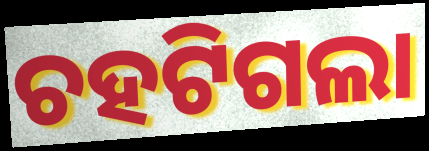
ଚହଟିଗଲା